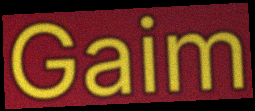
Gaim